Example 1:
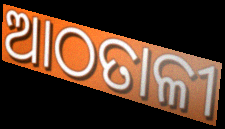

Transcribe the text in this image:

ଆଠତାଳୀ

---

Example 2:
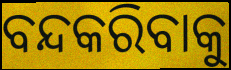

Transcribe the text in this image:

ବନ୍ଦକରିବାକୁ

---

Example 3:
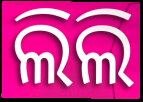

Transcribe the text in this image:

ଲିଲି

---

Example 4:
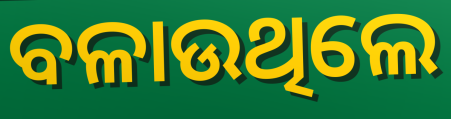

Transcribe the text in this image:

ବଳାଉଥିଲେ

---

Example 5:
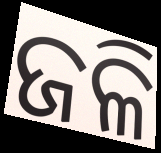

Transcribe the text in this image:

ଜଳି